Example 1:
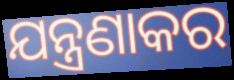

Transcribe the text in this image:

ଯନ୍ତ୍ରଣାକର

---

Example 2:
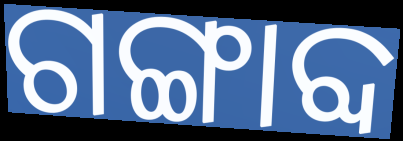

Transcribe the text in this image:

ଗଙ୍ଗାବ୍ଦ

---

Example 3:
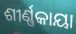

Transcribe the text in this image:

ଶୀର୍ଣ୍ଣକାୟା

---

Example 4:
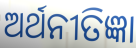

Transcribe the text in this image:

ଅର୍ଥନୀତିଜ୍ଞା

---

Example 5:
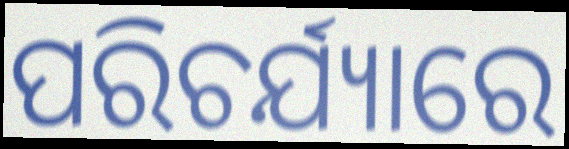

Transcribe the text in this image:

ପରିଚର୍ଯ୍ୟାରେ